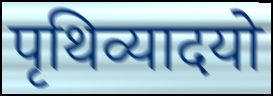
पृथिव्यादयो